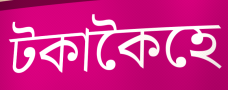
টকাকৈহে